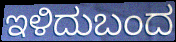
ಇಳಿದುಬಂದ